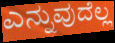
ಎನ್ನುವುದೆಲ್ಲ